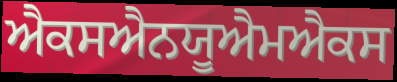
ਐਕਸਐਨਯੂਐਮਐਕਸ